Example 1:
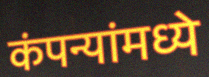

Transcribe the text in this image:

कंपन्यांमध्ये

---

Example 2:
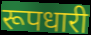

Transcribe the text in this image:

रूपधारी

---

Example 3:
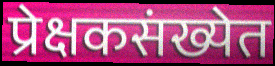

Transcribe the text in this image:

प्रेक्षकसंख्येत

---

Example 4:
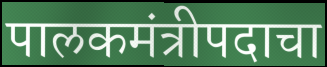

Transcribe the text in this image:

पालकमंत्रीपदाचा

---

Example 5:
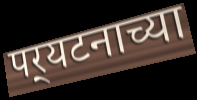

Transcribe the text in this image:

पर्यटनाच्या